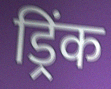
ड्रिंक